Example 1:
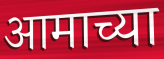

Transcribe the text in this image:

आमाच्या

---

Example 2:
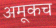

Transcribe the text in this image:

अमूकच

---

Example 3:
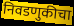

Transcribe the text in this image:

निवडणुकीचा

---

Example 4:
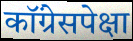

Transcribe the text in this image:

कॉंग्रेसपेक्षा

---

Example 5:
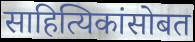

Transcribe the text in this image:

साहित्यिकांसोबत